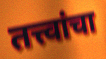
तत्त्वांचा